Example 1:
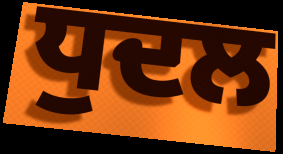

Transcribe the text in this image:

ਧੁਦਲ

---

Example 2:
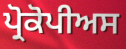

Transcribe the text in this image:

ਪ੍ਰੋਕੋਪੀਅਸ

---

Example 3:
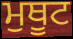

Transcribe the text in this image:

ਮੁਥੂਟ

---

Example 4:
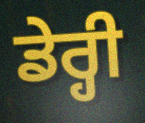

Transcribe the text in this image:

ਡੇਰ੍ਹੀ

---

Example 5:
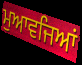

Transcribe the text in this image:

ਮੁਆਵਜਿਆਂ